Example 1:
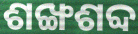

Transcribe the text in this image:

ଶଙ୍ଖଶବ୍ଦ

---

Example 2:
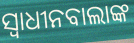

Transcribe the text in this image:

ସ୍ୱାଧୀନବାଲାଙ୍କ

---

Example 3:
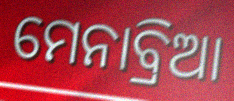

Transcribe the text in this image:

ମେନାବ୍ରିଆ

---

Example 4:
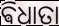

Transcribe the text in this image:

ଵିଧାତା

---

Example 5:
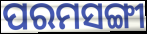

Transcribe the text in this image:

ପରମସଙ୍ଗୀ